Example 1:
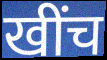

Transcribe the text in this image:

खींच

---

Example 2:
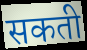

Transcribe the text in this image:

सकती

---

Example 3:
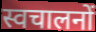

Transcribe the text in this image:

स्वचालनों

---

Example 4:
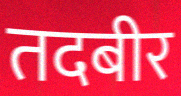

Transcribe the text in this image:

तदबीर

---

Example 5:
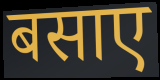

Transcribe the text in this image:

बसाए